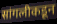
सांगलीकडून